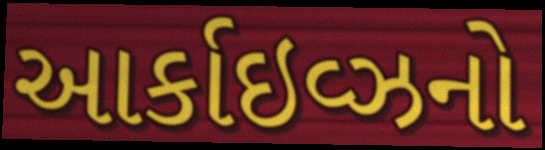
આર્કાઇવ્ઝનો